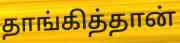
தாங்கித்தான்